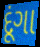
દૂંગા